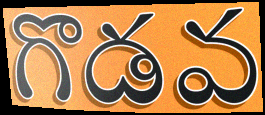
గొడవ